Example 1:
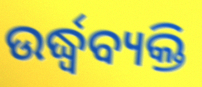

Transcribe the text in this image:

ଉର୍ଦ୍ଧ୍ୱବ୍ୟକ୍ତି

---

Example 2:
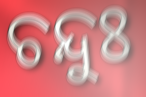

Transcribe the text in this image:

ଚନ୍ଦୁଃ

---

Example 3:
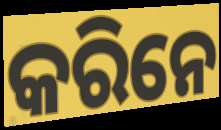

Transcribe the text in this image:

କରିନେ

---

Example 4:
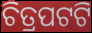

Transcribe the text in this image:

ଚିତ୍ରପଟଟି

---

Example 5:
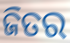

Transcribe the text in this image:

ଜିତର